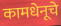
कामधेनूचे